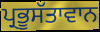
ਪ੍ਰਭੂਸੱਤਾਵਾਨ